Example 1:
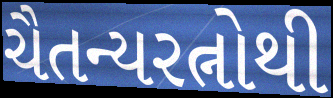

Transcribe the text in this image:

ચૈતન્યરત્નોથી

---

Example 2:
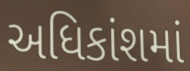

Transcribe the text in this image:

અધિકાંશમાં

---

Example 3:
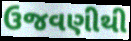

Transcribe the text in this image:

ઉજવણીથી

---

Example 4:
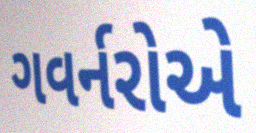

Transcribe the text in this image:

ગવર્નરોએ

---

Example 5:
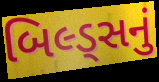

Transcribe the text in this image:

બિલ્ડ્સનું